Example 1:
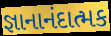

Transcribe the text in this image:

જ્ઞાનાનંદાત્મક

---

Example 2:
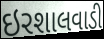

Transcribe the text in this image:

ઇરશાલવાડી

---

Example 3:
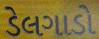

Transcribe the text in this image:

ડેલગાડો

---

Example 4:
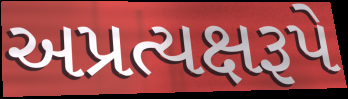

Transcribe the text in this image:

અપ્રત્યક્ષરૂપે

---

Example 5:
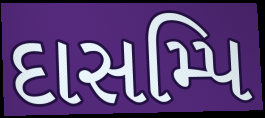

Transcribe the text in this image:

દાસમ્પિ